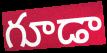
గూడా